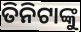
ତିନିଟାଙ୍କୁ